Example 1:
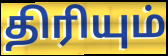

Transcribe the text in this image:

திரியும்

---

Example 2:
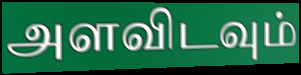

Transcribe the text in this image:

அளவிடவும்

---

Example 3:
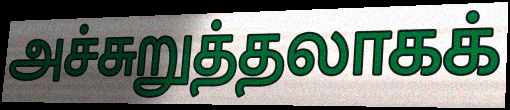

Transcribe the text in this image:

அச்சுறுத்தலாகக்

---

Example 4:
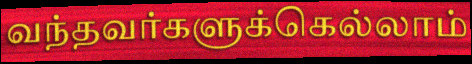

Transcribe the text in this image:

வந்தவர்களுக்கெல்லாம்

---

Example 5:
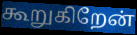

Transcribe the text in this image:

கூறுகிறேன்